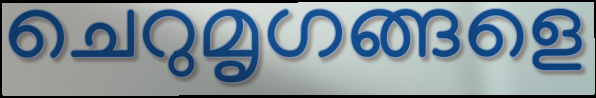
ചെറുമൃഗങ്ങളെ